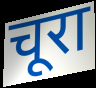
चूरा